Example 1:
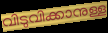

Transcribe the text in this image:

വിടുവിക്കാനുള്ള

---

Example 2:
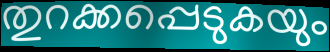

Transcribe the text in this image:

തുറക്കപ്പെടുകയും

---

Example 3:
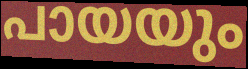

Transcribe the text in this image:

പായയും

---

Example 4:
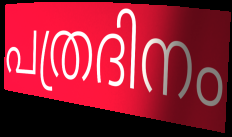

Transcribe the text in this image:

പത്രദിനം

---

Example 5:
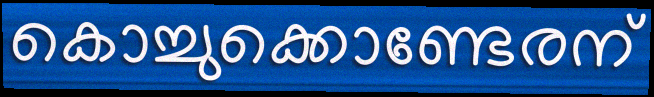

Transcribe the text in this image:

കൊച്ചുക്കൊണ്ടേരന്